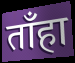
ताँहा